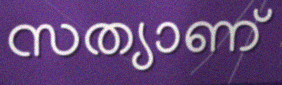
സത്യാണ്